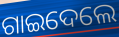
ଗାଇଦେଲେ